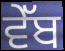
ਵੇੱਬ